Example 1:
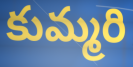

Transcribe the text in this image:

కుమ్మరి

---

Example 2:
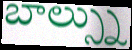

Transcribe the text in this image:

బాల్స్ను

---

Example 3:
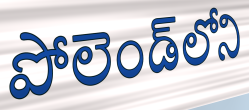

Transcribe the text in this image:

పోలెండ్‌లోని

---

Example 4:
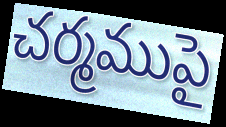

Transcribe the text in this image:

చర్మముపై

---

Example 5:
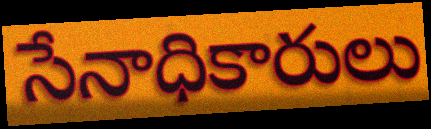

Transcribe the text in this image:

సేనాధికారులు